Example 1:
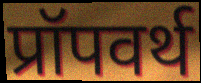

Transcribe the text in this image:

प्रॉपवर्थ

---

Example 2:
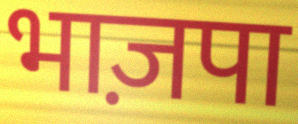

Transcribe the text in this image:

भाज़पा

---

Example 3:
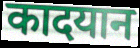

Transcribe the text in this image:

कादयान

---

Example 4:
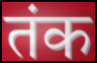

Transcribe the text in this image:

तंक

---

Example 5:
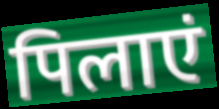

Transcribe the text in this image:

पिलाएं